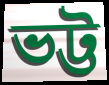
ভট্ট